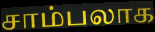
சாம்பலாக